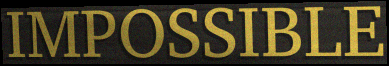
IMPOSSIBLE